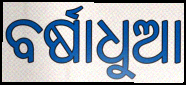
ବର୍ଷାଧୁଆ